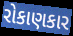
રોકાણકાર